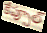
కేప్సూల్